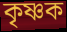
কৃষ্ণক